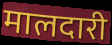
मालदारी